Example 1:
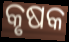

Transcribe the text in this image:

କୃଷକ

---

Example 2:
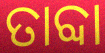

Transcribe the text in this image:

ତାବ୍ଦା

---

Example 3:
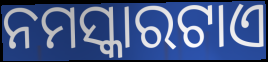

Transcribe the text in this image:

ନମସ୍କାରଟାଏ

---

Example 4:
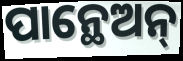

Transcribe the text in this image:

ପାନ୍ଥେଅନ୍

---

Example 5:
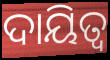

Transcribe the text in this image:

ଦାୟିତ୍ବ